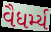
વૈધર્મ્ય